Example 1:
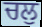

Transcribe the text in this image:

ਚਲੁ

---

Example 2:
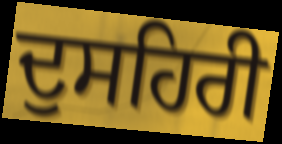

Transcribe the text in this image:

ਦੁਸਹਿਰੀ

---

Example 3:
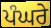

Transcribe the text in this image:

ਪੰਘਰੇ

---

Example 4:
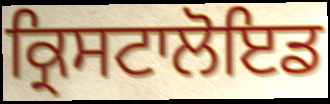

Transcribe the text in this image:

ਕ੍ਰਿਸਟਾਲੋਇਡ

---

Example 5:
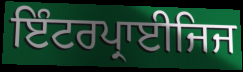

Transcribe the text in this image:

ਇੰਟਰਪ੍ਰਾਈਜਿਜ